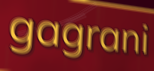
gagrani